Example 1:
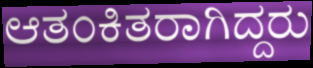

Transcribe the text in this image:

ಆತಂಕಿತರಾಗಿದ್ದರು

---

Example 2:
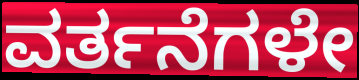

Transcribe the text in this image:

ವರ್ತನೆಗಳೇ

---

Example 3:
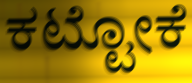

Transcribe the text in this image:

ಕಟ್ಟೋಕೆ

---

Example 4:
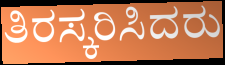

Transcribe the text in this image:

ತಿರಸ್ಕರಿಸಿದರು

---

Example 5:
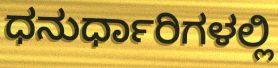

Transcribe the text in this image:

ಧನುರ್ಧಾರಿಗಳಲ್ಲಿ